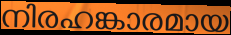
നിരഹങ്കാരമായ